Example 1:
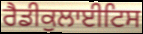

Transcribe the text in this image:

ਰੈਡੀਕੁਲਾਈਟਿਸ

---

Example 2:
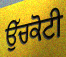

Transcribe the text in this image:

ਉੱਚਕੋਟੀ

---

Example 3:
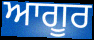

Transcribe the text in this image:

ਆਗੂਰ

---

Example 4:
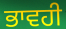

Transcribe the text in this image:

ਭਾਵਹੀ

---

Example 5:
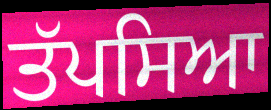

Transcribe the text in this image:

ਤੱਪਸਿਆ